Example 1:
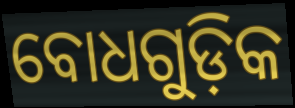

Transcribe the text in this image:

ବୋଧଗୁଡ଼ିକ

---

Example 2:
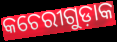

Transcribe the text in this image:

କଚେରୀଗୁଡ଼ାକ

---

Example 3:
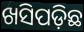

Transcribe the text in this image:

ଖସିପଡ଼ିଛ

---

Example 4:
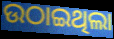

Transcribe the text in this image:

ଉଠାଇଥିଲା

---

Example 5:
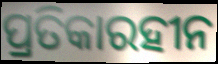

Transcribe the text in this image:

ପ୍ରତିକାରହୀନ